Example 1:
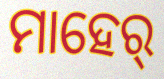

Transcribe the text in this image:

ମାହେର୍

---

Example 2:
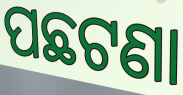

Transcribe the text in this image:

ପଛଟଣା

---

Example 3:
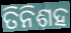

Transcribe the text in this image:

ତିନିଶହ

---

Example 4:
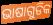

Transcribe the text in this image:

ଭାଷାଗୁଡିକ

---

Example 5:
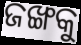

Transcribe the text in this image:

ଜଙ୍ଖକୁ